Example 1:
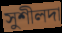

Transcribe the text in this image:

সুশীলদা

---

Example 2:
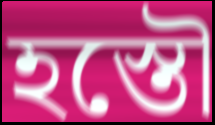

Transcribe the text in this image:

হস্তৌ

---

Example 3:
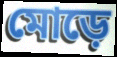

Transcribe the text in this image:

মোড়ে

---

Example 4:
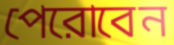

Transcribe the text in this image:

পেরোবেন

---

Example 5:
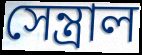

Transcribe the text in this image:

সেন্ত্রাল